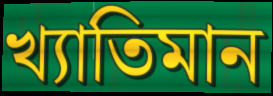
খ্যাতিমান